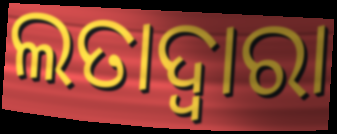
ଲତାଦ୍ୱାରା